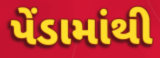
પેંડામાંથી